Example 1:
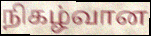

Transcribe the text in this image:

நிகழ்வான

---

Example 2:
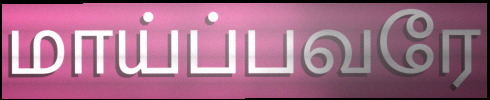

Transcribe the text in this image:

மாய்ப்பவரே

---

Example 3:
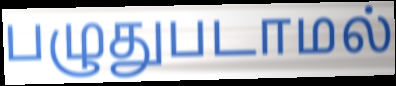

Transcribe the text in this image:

பழுதுபடாமல்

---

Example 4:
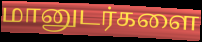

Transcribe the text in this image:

மானுடர்களை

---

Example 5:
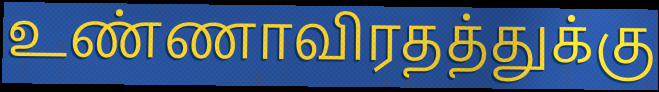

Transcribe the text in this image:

உண்ணாவிரதத்துக்கு